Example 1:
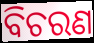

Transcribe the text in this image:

ବିଚରଣ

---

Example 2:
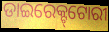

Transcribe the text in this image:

ଡାଇରେକ୍ଟ୍‌ଟୋରୀ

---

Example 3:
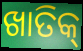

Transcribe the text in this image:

ଖାତିକ୍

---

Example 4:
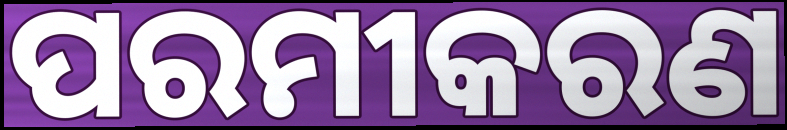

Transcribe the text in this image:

ପରମୀକରଣ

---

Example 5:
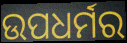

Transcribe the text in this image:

ଉପଧର୍ମର